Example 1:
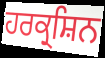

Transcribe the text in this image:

ਹਰਕ੍ਰਸ਼ਿਨ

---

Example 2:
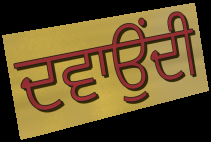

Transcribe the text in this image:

ਦਵਾਉਂਦੀ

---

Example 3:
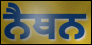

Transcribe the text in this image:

ਨੈਥਨ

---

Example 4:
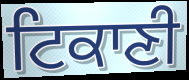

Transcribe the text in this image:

ਟਿਕਾਣੀ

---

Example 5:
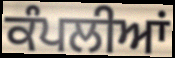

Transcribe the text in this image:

ਕੰਪਲੀਆਂ